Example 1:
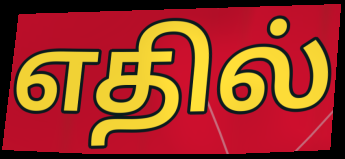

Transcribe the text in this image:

எதில்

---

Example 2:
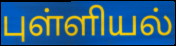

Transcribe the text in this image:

புள்ளியல்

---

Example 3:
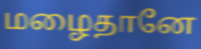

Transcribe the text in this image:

மழைதானே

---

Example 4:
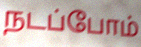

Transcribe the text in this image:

நடப்போம்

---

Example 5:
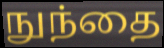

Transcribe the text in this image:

நுந்தை